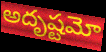
అదృష్టమో